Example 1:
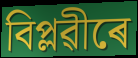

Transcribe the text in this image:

বিপ্লৱীৰে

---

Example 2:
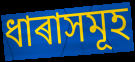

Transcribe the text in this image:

ধাৰাসমূহ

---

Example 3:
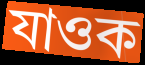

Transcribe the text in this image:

যাওক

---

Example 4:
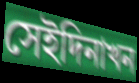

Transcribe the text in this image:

সেইদিনাখন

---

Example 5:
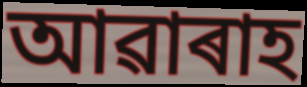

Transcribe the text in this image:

আৱাৰাহ